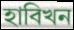
হাবিখন